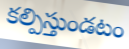
కల్పిస్తుండటం